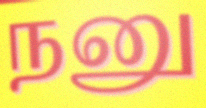
நனு